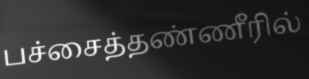
பச்சைத்தண்ணீரில்